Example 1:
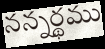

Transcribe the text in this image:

నన్నర్థము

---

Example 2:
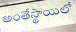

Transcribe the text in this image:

అంతేస్థాయిలో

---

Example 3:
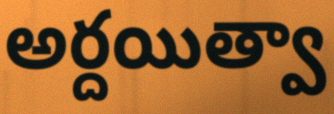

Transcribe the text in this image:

అర్దయిత్వా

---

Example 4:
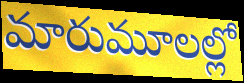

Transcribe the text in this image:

మారుమూలల్లో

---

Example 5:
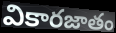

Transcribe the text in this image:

వికారజాతం